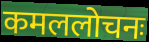
कमललोचनः